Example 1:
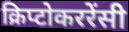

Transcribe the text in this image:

क्रिप्टोकररेंसी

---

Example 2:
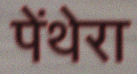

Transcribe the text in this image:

पेंथेरा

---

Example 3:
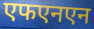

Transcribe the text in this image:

एफएनएन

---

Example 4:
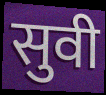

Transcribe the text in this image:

सुवी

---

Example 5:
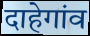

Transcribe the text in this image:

दाहेगांव